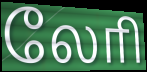
லேரி